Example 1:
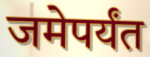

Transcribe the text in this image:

जमेपर्यंत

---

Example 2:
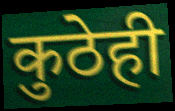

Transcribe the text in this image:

कुठेही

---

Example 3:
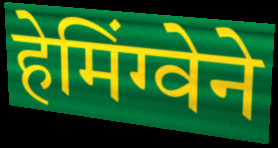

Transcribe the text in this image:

हेमिंग्वेने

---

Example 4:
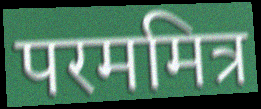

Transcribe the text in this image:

परममित्र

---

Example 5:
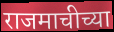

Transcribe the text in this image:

राजमाचीच्या